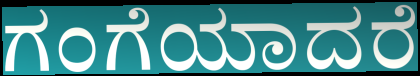
ಗಂಗೆಯಾದರೆ